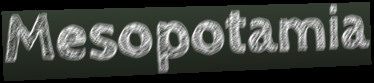
Mesopotamia